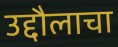
उद्दौलाचा